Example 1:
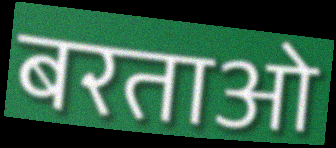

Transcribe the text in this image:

बरताओ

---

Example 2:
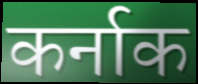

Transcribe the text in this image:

कर्नाक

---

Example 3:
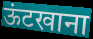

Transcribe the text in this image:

ऊंटखाना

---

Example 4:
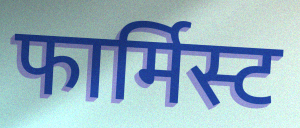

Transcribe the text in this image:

फार्मिस्ट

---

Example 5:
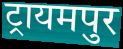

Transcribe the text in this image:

ट्रायमपुर